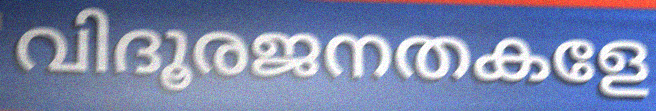
വിദൂരജനതകളേ